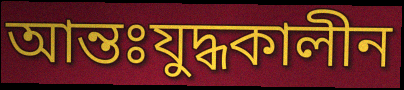
আন্তঃযুদ্ধকালীন